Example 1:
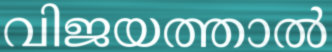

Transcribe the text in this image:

വിജയത്താൽ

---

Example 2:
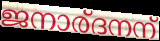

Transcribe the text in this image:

ജനാര്ദനന്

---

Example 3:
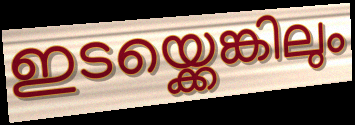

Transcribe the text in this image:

ഇടയ്ക്കെങ്കിലും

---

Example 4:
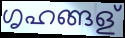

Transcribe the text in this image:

ഗൃഹങ്ങള്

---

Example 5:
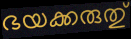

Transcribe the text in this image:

ഭയക്കരുതു്